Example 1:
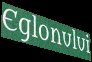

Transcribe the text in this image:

Eglonului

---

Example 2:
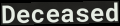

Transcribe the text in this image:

Deceased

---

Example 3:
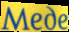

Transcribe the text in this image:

Mede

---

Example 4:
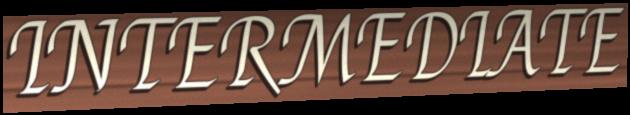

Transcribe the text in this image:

INTERMEDIATE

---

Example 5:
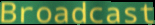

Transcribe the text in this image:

Broadcast